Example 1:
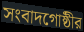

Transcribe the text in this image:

সংবাদগোষ্ঠীর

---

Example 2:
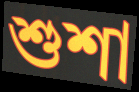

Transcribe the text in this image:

শুশা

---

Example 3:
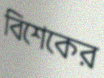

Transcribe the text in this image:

বিশেকের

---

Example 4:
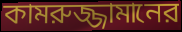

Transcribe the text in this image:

কামরুজ্জামানের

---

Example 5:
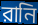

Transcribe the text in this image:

রানি